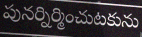
పునర్నిర్మించుటకును